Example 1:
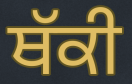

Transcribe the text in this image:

ਥੱਕੀ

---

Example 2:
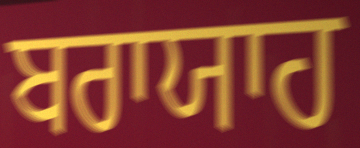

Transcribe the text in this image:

ਬਰਾਯਾਹ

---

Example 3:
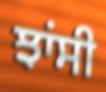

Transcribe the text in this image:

ਝਾਂਸੀ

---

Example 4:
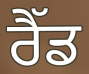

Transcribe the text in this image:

ਰੈੱਡ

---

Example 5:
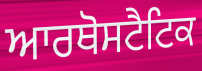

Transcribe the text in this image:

ਆਰਥੋਸਟੈਟਿਕ